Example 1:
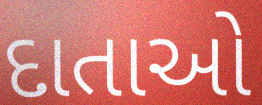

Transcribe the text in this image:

દાતાઓ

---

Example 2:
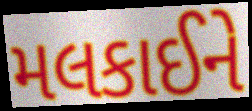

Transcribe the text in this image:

મલકાઈને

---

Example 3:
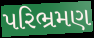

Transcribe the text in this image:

પરિભ્રમણ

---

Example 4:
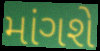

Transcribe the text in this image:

માંગશે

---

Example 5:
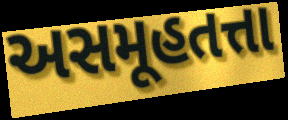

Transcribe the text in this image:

અસમૂહતત્તા